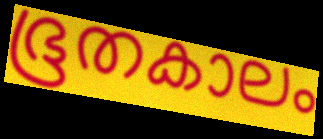
ഭൂതകാലം